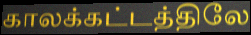
காலக்கட்டத்திலே